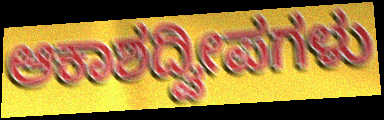
ಆಕಾಶದ್ವೀಪಗಳು